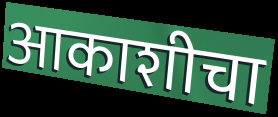
आकाशीचा